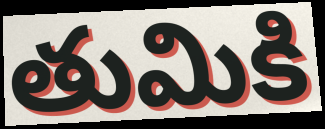
తుమికి